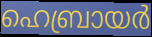
ഹെബ്രായർ